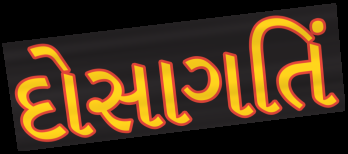
દોસાગતિં